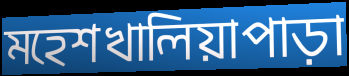
মহেশখালিয়াপাড়া